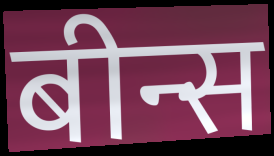
बीन्‍स